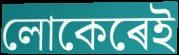
লোকেৰেই